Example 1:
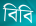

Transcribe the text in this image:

বিবি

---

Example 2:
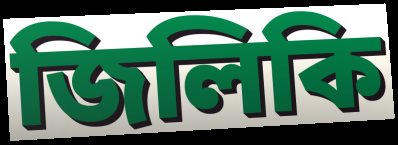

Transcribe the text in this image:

জিলিকি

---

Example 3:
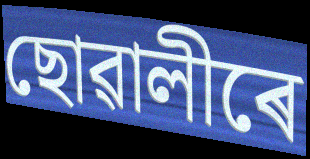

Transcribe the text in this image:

ছোৱালীৰে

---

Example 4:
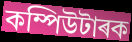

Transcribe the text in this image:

কম্পিউটাৰক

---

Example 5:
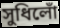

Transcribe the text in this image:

সুধিলোঁ